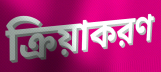
ক্রিয়াকরণ